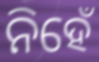
ନିହେଁ